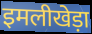
इमलीखेड़ा